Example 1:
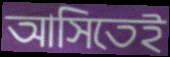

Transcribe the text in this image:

আসিতেই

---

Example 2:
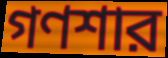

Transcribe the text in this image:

গণশার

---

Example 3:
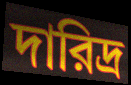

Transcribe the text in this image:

দারিদ্র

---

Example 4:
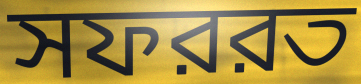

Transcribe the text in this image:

সফররত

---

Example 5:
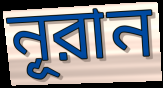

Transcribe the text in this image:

নূরান